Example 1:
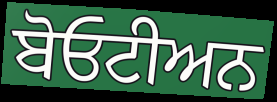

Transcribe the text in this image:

ਬੋਓਟੀਅਨ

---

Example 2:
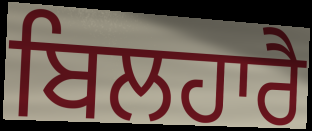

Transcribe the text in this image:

ਬਿਲਹਾਰੈ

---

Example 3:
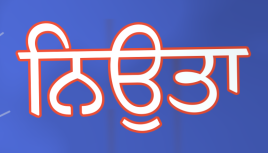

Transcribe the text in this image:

ਨਿਉਤਾ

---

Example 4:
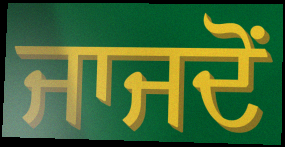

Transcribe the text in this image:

ਜਾਜਦੋਂ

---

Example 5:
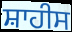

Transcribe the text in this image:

ਸ਼ਾਹੀਸ